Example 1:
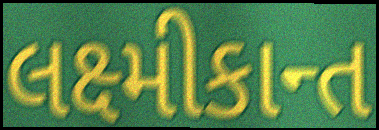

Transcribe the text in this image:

લક્ષ્મીકાન્ત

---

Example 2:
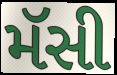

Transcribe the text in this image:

મૅસી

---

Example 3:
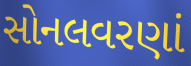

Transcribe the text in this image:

સોનલવરણાં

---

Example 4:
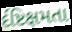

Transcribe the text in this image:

ર્દષ્ટિક્ષમતા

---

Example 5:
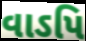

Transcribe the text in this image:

વાઽપિ